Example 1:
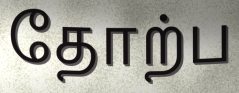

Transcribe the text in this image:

தோற்ப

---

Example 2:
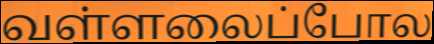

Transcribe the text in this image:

வள்ளலைப்போல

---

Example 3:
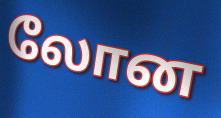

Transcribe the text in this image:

லோன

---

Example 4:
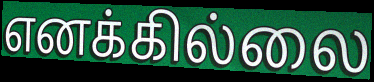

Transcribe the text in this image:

எனக்கில்லை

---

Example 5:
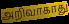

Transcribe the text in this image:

அறிவாகாது